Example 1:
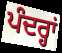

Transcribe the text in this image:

ਪੰਦਰ੍ਹਾਂ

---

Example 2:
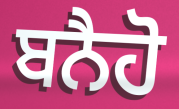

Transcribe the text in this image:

ਬਨੈਹੋ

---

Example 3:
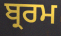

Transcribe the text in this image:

ਬ੍ਰਰਮ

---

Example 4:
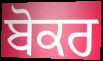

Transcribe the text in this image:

ਬੋਕਰ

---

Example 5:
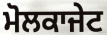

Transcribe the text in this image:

ਮੋਲਕਾਜੇਟ